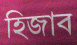
হিজাব